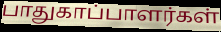
பாதுகாப்பாளர்கள்